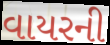
વાયરની